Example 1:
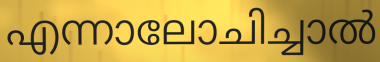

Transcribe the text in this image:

എന്നാലോചിച്ചാൽ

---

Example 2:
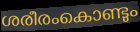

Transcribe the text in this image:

ശരീരംകൊണ്ടും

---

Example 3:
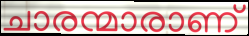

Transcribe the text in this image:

ചാരന്മാരാണ്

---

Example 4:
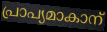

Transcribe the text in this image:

പ്രാപ്യമാകാന്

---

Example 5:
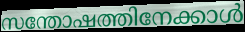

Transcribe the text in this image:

സന്തോഷത്തിനേക്കാൾ